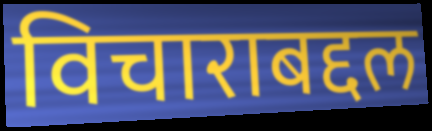
विचाराबद्दल